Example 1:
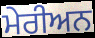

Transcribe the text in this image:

ਮੇਰੀਅਨ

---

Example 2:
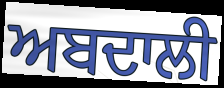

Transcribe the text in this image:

ਅਬਦਾਲੀ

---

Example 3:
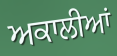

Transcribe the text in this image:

ਅਕਾਲੀਆਂ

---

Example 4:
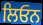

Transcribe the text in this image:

ਲਿਓਨ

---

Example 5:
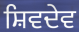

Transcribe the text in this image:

ਸ਼ਿਵਦੇਵ